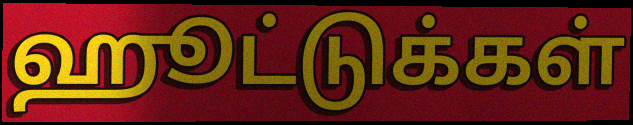
ஹூட்டுக்கள்